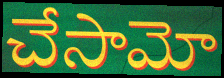
చేసామో